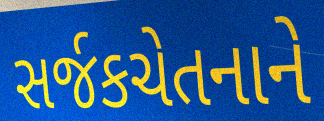
સર્જકચેતનાને